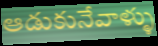
ఆడుకునేవాళ్ళు